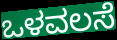
ಒಳವಲಸೆ